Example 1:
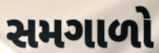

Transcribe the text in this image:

સમગાળો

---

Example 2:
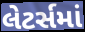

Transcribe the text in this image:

લેટર્સમાં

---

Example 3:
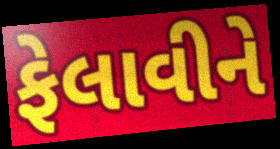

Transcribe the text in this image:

ફેલાવીને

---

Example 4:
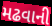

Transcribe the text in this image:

મઢવાની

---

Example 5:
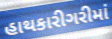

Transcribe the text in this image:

હાથકારીગરીમાં